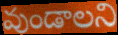
వుండాలని